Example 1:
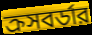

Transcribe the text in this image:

ক্রসবর্ডার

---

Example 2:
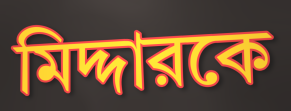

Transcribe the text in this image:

মিদ্দারকে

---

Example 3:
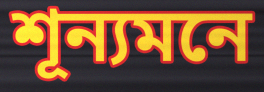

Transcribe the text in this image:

শূন্যমনে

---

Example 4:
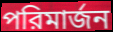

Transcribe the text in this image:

পরিমার্জন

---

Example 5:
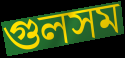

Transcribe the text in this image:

গুলসম